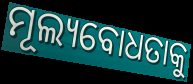
ମୂଲ୍ୟବୋଧତାକୁ